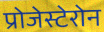
प्रोजेस्टेरोन